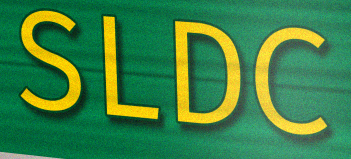
SLDC